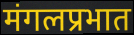
मंगलप्रभात